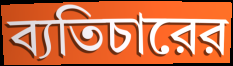
ব্যতিচারের